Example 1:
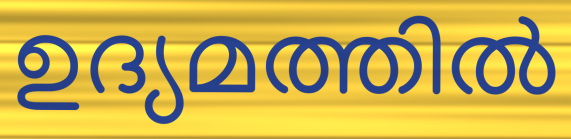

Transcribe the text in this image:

ഉദ്യമത്തിൽ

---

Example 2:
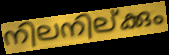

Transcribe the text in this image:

നിലനില്ക്കും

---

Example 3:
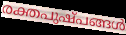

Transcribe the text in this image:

രക്തപുഷ്പങ്ങൾ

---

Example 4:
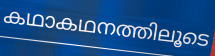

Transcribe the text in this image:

കഥാകഥനത്തിലൂടെ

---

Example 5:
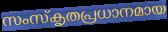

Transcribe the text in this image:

സംസ്‌കൃതപ്രധാനമായ